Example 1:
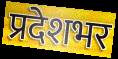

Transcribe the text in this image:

प्रदेशभर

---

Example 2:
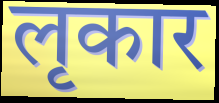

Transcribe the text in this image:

लृकार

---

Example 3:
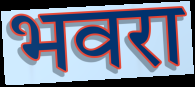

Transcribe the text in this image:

भवरा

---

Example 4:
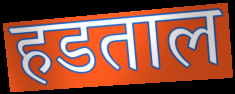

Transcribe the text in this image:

हडताल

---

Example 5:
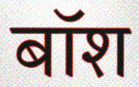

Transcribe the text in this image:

बॉश